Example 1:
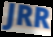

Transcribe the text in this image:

JRR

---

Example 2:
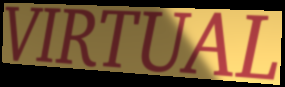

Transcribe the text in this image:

VIRTUAL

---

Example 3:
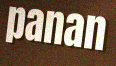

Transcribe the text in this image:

panan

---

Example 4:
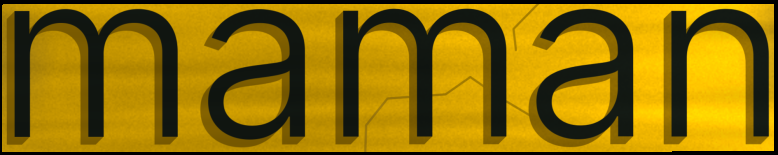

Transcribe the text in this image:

maman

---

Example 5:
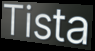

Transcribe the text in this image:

Tista